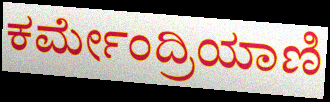
ಕರ್ಮೇಂದ್ರಿಯಾಣಿ